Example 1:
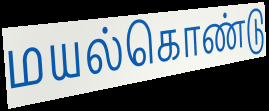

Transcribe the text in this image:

மயல்கொண்டு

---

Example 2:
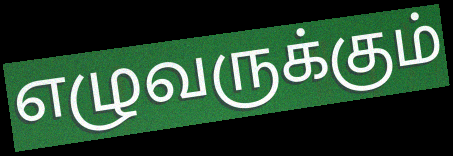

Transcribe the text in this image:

எழுவருக்கும்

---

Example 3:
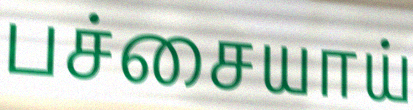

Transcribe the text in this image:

பச்சையாய்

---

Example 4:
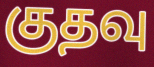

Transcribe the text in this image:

குதவு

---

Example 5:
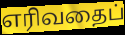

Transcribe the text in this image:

எரிவதைப்